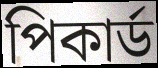
পিকার্ড